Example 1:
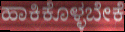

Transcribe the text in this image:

ಹಾಕಿಕೊಳ್ಳಬೇಕೆ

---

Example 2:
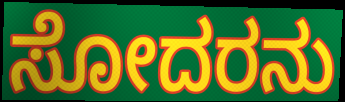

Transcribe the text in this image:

ಸೋದರನು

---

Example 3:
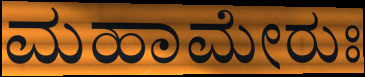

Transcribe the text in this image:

ಮಹಾಮೇರುಃ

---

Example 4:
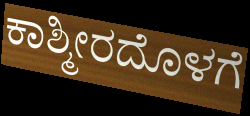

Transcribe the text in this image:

ಕಾಶ್ಮೀರದೊಳಗೆ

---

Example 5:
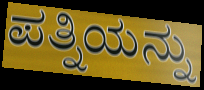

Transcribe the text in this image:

ಪತ್ನಿಯನ್ನು